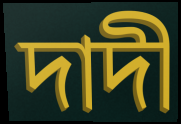
দাদী